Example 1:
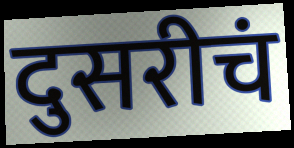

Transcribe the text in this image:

दुसरीचं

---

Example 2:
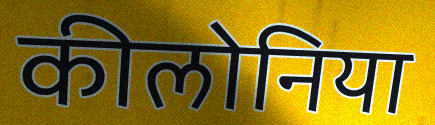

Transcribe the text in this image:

कीलोनिया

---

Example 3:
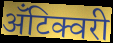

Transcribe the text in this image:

अँटिक्वरी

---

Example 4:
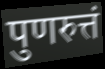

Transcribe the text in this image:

पुणरुत्तं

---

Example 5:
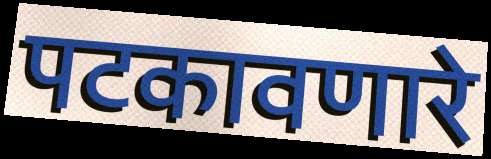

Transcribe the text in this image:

पटकावणारे